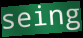
seing